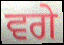
ਵਗੇ